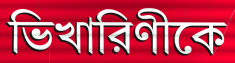
ভিখারিণীকে